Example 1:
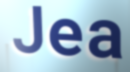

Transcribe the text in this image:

Jea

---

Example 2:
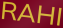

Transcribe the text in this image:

RAHI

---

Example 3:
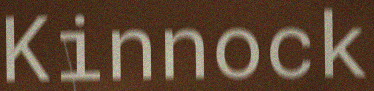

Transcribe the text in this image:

Kinnock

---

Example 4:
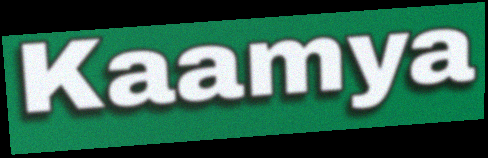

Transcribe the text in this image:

Kaamya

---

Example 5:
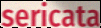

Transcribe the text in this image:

sericata